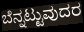
ಬೆನ್ನಟ್ಟುವುದರ